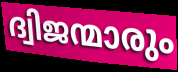
ദ്വിജന്മാരും